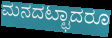
ಮನದಟ್ಟಾದರೂ